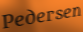
Pedersen